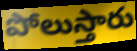
పోలుస్తారు